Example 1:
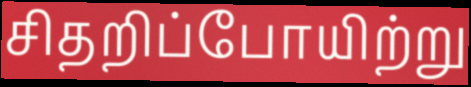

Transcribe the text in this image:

சிதறிப்போயிற்று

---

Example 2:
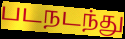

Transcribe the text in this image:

படநடந்து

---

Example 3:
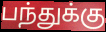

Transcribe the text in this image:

பந்துக்கு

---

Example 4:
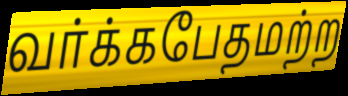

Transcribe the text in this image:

வர்க்கபேதமற்ற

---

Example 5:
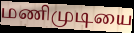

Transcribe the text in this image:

மணிமுடியை